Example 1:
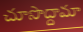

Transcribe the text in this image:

చూసొద్దామా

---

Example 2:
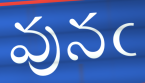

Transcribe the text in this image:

వునఁ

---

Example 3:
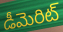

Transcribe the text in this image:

డీమెరిట్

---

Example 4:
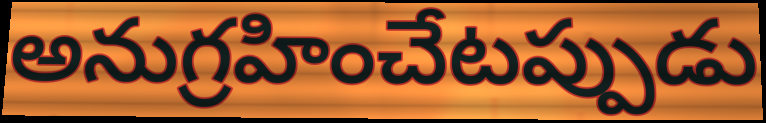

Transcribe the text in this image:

అనుగ్రహించేటప్పుడు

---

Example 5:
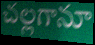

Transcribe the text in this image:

చల్లగానూ